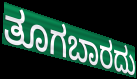
ತೂಗಬಾರದು